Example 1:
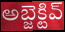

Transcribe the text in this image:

అబ్జెక్టివ్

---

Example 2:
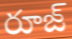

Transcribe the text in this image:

రూజ్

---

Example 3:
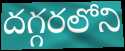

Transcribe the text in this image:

దగ్గరలోని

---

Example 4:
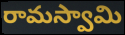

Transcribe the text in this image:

రామస్వామి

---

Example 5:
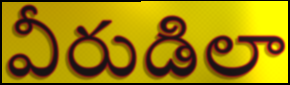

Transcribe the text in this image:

వీరుడిలా